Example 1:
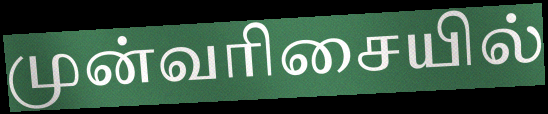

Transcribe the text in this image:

முன்வரிசையில்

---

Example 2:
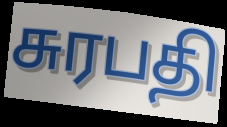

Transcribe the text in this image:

சுரபதி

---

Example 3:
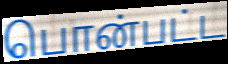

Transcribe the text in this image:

பொன்பட்ட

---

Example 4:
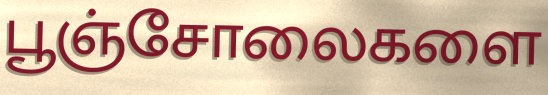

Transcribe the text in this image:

பூஞ்சோலைகளை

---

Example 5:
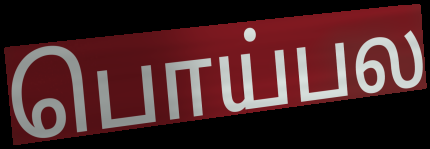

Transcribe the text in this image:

பொய்பல